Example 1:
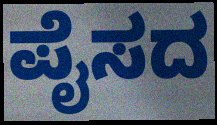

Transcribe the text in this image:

ಪೈಸದ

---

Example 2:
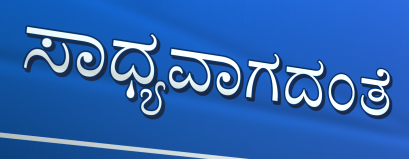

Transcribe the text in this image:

ಸಾಧ್ಯವಾಗದಂತೆ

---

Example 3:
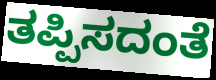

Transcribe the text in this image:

ತಪ್ಪಿಸದಂತೆ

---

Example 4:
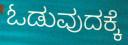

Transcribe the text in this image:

ಓಡುವುದಕ್ಕೆ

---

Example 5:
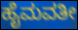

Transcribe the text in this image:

ಹೈಮವತೀ